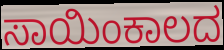
ಸಾಯಿಂಕಾಲದ